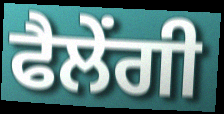
ਫੈਲੇਂਗੀ